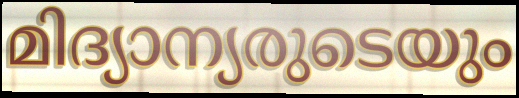
മിദ്യാന്യരുടെയും